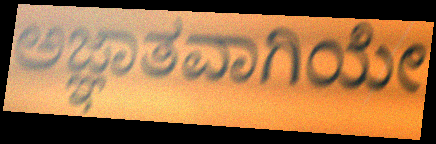
ಅಜ್ಞಾತವಾಗಿಯೇ